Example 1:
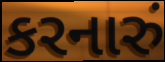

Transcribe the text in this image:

કરનારું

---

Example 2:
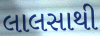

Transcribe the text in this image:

લાલસાથી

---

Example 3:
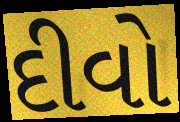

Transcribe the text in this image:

દીવો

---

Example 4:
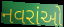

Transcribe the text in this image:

નવરાંઓ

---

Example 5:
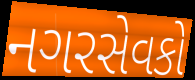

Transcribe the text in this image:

નગરસેવકો